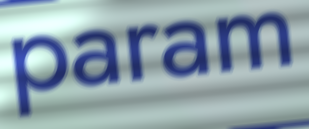
param